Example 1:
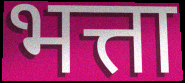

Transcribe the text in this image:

भत्ता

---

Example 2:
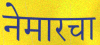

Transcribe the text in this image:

नेमारचा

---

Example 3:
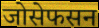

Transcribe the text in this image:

जोसेफसन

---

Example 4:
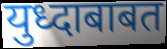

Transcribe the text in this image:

युध्दाबाबत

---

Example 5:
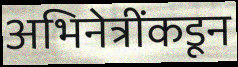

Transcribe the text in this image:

अभिनेत्रींकडून